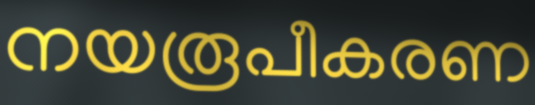
നയരൂപീകരണ